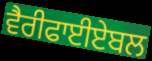
ਵੈਰੀਫਾਈਏਬਲ